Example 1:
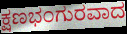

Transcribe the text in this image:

ಕ್ಷಣಭಂಗುರವಾದ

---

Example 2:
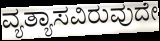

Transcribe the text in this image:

ವ್ಯತ್ಯಾಸವಿರುವುದೇ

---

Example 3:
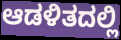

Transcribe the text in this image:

ಆಡಳಿತದಲ್ಲಿ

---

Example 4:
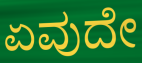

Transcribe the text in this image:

ಏವುದೇ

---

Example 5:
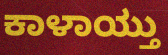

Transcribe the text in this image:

ಕಾಳಾಯ್ತು